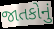
જાતકોનું